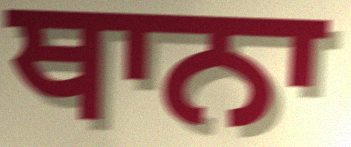
ਥਾਨਾ